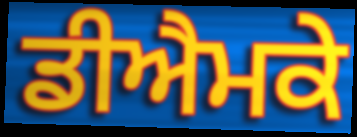
ਡੀਐਮਕੇ